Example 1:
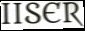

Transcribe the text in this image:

IISER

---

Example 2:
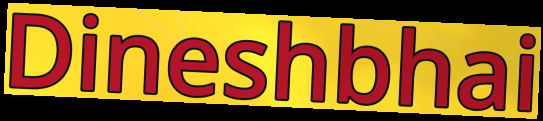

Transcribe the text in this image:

Dineshbhai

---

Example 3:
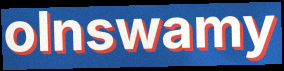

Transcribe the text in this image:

olnswamy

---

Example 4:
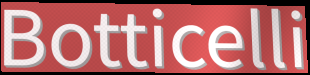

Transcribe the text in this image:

Botticelli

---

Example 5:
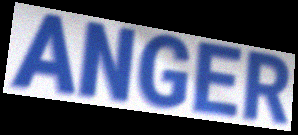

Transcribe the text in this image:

ANGER